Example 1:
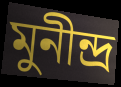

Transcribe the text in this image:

মুনীন্দ্ৰ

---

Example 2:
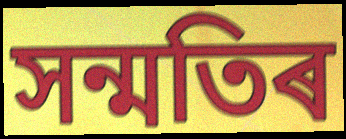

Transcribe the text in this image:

সন্মতিৰ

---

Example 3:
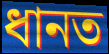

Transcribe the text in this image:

ধানত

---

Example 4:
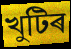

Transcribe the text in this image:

খুটিৰ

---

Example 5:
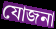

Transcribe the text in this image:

যোজনা